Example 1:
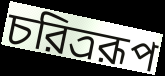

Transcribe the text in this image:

চরিত্ররূপ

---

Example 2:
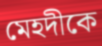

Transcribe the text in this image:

মেহদীকে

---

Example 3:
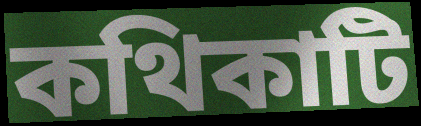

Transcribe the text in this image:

কথিকাটি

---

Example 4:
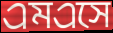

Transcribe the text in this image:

এমএসে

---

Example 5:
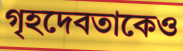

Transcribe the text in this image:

গৃহদেবতাকেও